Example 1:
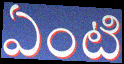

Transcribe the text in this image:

ఏంటి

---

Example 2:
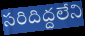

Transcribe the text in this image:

సరిదిద్దలేని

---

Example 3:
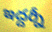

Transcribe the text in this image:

ఇద్దర్నీ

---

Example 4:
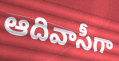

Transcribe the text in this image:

ఆదివాసీగా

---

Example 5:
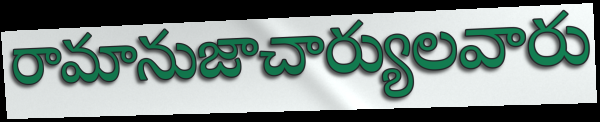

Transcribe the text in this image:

రామానుజాచార్యులవారు